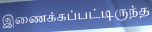
இணைக்கப்பட்டிருந்த